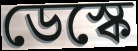
ডেস্কে